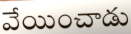
వేయించాడు